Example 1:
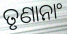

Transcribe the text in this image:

ତୃଣାନାଂ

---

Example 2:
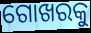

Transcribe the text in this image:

ଗୋଖରକୁ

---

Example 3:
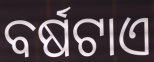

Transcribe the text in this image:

ବର୍ଷଟାଏ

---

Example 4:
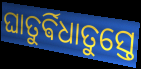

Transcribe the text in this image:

ଘାତୁର୍ଵିଧାତୁସ୍ତେ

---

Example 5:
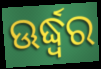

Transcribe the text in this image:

ଊର୍ଦ୍ଧ୍ଵର